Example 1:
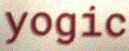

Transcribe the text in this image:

yogic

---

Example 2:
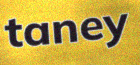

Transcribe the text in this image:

taney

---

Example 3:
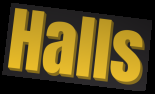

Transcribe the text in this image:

Halls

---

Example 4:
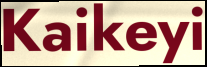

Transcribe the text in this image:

Kaikeyi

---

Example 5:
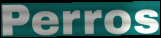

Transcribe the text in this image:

Perros